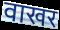
वाखर